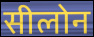
सीलोन